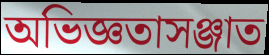
অভিজ্ঞতাসঞ্জাত